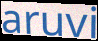
aruvi